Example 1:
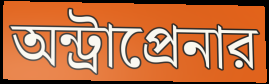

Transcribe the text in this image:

অন্ট্রাপ্রেনার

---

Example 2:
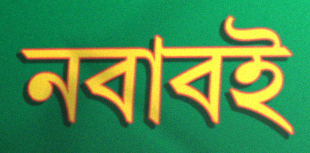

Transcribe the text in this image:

নবাবই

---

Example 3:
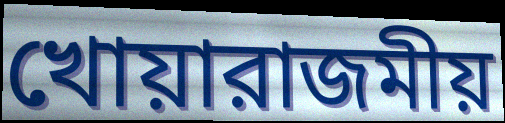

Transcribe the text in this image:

খোয়ারাজমীয়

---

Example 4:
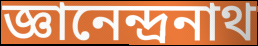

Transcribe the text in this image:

জ্ঞানেন্দ্রনাথ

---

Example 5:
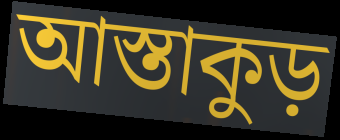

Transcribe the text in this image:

আস্তাকুড়